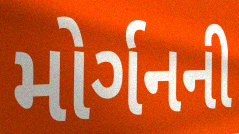
મોર્ગનની